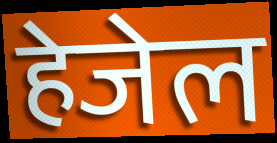
हेजेल